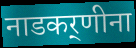
नाडकर्णीना